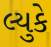
લ્યુકે